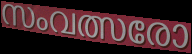
സംവത്സരോ